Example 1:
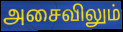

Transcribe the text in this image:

அசைவிலும்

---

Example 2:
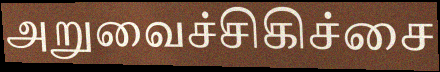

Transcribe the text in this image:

அறுவைச்சிகிச்சை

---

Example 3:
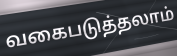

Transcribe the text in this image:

வகைபடுத்தலாம்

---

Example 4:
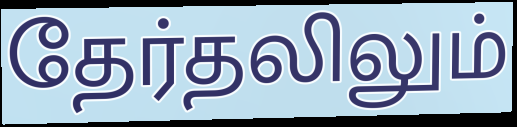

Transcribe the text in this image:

தேர்தலிலும்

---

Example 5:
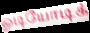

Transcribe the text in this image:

ஓடியோடிக்